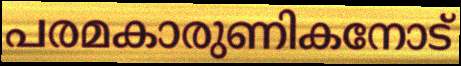
പരമകാരുണികനോട്